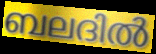
ബലദിൽ